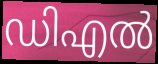
ഡിഎൽ